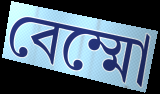
বেম্মো